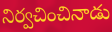
నిర్వచించినాడు